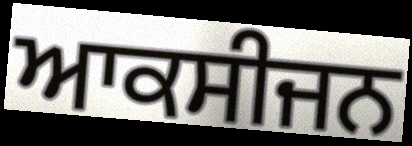
ਆਕਸੀਜਨ